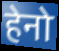
हेनो